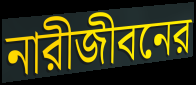
নারীজীবনের